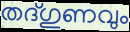
തദ്ഗുണവും